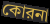
কোরনা